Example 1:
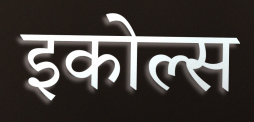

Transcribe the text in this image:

इकोल्स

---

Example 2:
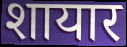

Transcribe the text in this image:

शायार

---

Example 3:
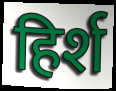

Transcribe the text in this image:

हिर्श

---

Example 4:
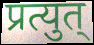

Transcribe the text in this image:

प्रत्युत्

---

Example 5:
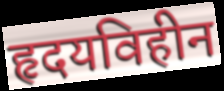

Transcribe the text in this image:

हृदयविहीन